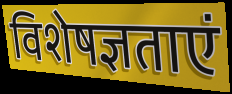
विशेषज्ञताएं